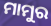
ମାମୁର